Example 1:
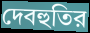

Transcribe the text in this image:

দেবহুতির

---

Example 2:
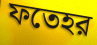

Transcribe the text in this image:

ফতেহর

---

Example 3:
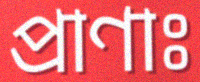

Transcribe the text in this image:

প্রাণাঃ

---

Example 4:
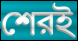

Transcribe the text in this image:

শেরই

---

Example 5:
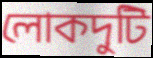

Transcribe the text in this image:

লোকদুটি